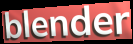
blender